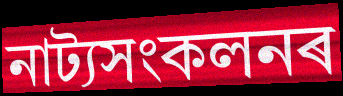
নাট্যসংকলনৰ